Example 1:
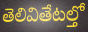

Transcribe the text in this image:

తెలివితేటల్తో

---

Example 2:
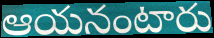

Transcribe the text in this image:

ఆయనంటారు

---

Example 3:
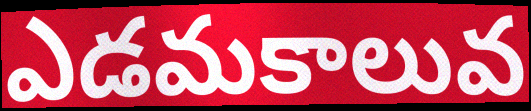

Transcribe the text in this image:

ఎడమకాలువ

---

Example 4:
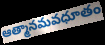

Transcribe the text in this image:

ఆత్మానమవధూతం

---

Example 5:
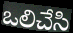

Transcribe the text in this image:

ఒలిచేసి